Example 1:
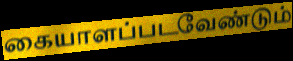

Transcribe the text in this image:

கையாளப்படவேண்டும்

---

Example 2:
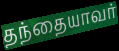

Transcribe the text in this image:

தந்தையாவர்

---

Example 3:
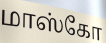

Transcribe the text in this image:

மாஸ்கோ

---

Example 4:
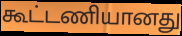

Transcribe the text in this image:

கூட்டணியானது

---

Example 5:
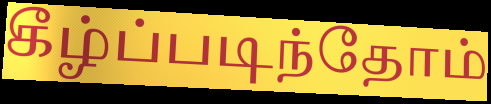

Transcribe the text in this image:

கீழ்ப்படிந்தோம்